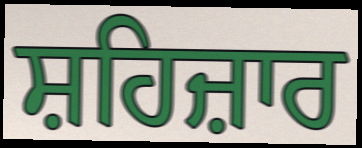
ਸ਼ਹਿਜ਼ਾਰ